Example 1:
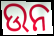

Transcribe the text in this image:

ଉନ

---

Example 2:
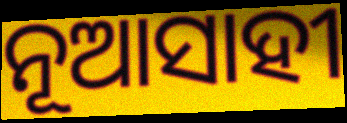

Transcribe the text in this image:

ନୂଆସାହୀ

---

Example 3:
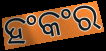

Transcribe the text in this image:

ହଂକଂର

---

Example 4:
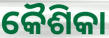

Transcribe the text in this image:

କୈଶିକା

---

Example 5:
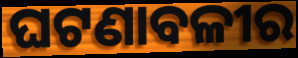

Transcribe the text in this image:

ଘଟଣାବଳୀର